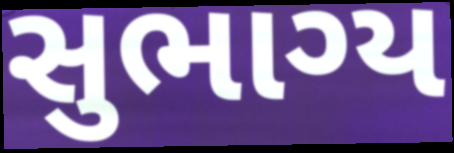
સુભાગ્ય